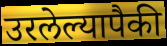
उरलेल्यापैकी